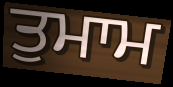
ਤੁਮਾਮ